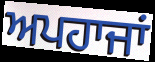
ਅਪਹਾਜਾਂ